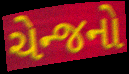
ચેન્જનો